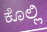
ಕೊಲ್ಲಿ